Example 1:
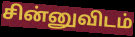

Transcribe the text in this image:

சின்னுவிடம்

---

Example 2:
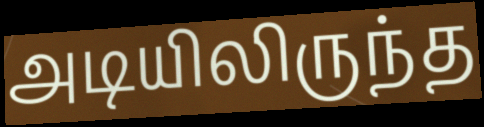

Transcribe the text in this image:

அடியிலிருந்த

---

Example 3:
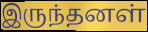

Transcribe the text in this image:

இருந்தனள்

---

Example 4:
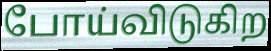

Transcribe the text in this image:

போய்விடுகிற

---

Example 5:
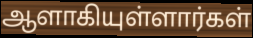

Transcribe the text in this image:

ஆளாகியுள்ளார்கள்